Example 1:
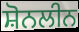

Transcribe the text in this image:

ਸ਼ੋਨਲੀਨ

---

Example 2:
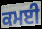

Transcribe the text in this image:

ਕਮਈ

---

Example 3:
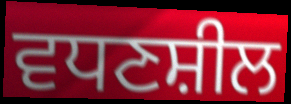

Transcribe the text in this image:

ਵਧਣਸ਼ੀਲ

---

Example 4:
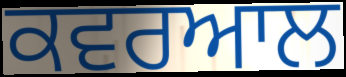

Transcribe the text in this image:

ਕਵਰਆਲ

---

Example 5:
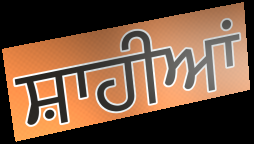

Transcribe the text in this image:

ਸ਼ਾਹੀਆਂ